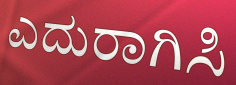
ಎದುರಾಗಿಸಿ